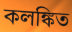
কলঙ্কিত